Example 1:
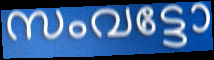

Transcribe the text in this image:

സംവട്ടോ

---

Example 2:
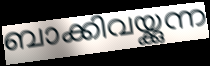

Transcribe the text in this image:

ബാക്കിവയ്ക്കുന്ന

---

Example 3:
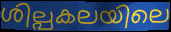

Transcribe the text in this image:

ശില്പകലയിലെ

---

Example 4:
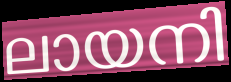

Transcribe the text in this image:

ലായനി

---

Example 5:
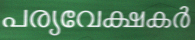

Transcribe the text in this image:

പര്യവേക്ഷകർ